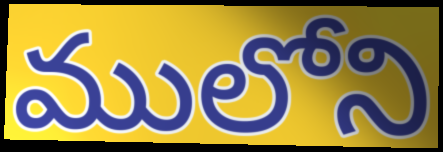
ములోని